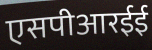
एसपीआरईई